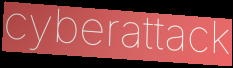
cyberattack